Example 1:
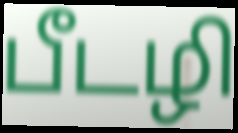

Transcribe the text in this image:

பீடழி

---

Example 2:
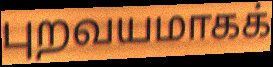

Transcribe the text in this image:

புறவயமாகக்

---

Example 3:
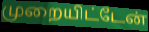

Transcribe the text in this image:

முறையிட்டேன்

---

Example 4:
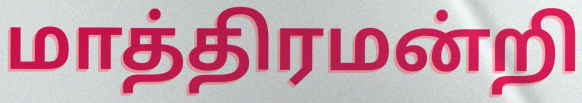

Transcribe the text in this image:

மாத்திரமன்றி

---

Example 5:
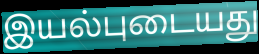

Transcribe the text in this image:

இயல்புடையது